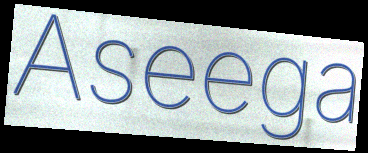
Aseega